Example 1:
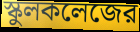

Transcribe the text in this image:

স্কুলকলেজের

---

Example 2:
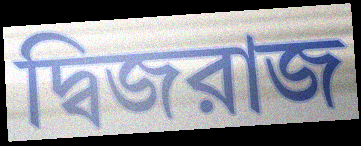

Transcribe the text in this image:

দ্বিজরাজ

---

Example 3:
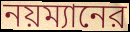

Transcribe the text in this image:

নয়ম্যানের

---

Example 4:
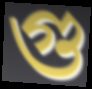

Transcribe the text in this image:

গু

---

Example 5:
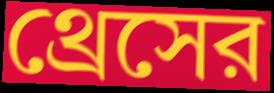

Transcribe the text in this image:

থ্রেসের